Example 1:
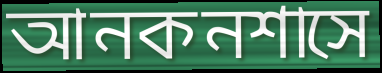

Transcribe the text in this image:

আনকনশাসে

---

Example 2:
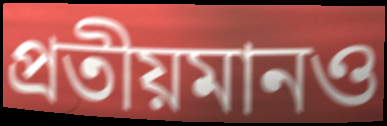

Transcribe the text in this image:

প্রতীয়মানও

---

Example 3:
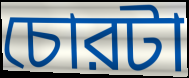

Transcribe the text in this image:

চোরটা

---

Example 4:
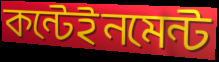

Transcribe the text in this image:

কন্টেইনমেন্ট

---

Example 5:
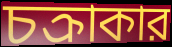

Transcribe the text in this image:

চক্রাকার